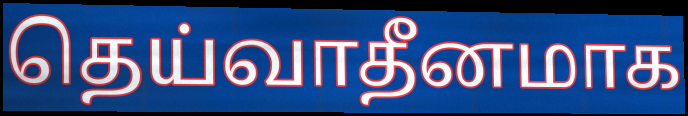
தெய்வாதீனமாக